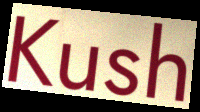
Kush